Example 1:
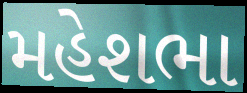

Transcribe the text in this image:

મહેશભા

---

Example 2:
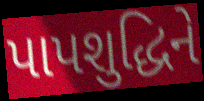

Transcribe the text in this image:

પાપશુદ્ધિને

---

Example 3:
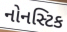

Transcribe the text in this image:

નોનસ્ટિક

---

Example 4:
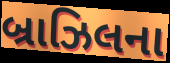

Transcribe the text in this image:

બ્રાઝિલના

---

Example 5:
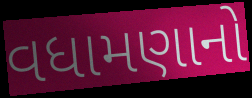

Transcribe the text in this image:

વધામણાનો